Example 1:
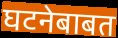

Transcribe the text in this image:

घटनेबाबत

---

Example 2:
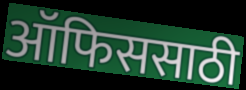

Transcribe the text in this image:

ऑफिससाठी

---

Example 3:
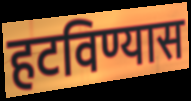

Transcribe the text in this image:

हटविण्यास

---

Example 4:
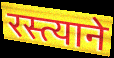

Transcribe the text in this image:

रस्त्याने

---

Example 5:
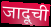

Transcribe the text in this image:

जादूची